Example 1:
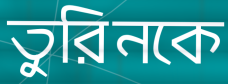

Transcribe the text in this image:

তুরিনকে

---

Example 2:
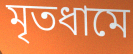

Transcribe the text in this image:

মৃতধামে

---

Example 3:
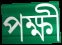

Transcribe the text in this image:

পক্ষী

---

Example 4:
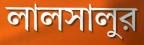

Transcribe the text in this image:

লালসালুর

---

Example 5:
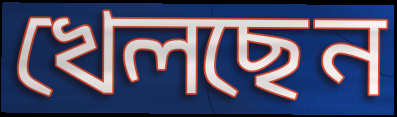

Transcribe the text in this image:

খেলছেন